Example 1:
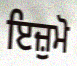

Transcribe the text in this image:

ਇਜ਼ੁਮੋ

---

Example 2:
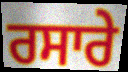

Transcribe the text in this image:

ਰਸਾਰੇ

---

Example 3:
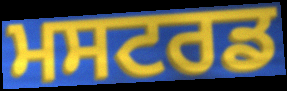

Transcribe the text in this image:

ਮਸਟਰਡ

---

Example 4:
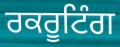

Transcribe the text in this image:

ਰਕਰੂਟਿੰਗ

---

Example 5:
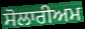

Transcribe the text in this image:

ਸੋਲਾਰੀਅਮ